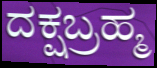
ದಕ್ಷಬ್ರಹ್ಮ